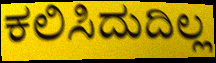
ಕಲಿಸಿದುದಿಲ್ಲ